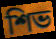
শিভ